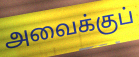
அவைக்குப்